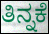
ತಿನ್ನಕೆ